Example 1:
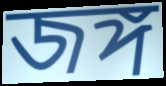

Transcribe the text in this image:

জঙ্গ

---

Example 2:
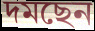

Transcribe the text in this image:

দমছেন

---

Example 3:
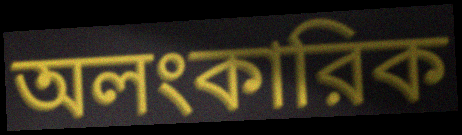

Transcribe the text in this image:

অলংকারিক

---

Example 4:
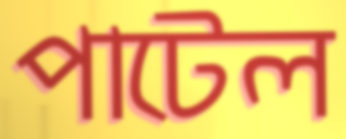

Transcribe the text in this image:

পাটেল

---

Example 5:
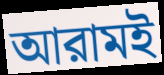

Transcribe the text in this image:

আরামই